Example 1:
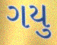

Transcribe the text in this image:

ગયુ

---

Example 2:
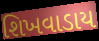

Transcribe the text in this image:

શિખવાડાય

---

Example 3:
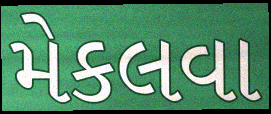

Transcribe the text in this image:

મેકલવા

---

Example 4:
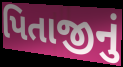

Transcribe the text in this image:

પિતાજીનું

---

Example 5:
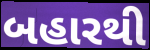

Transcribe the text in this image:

બહારથી